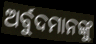
ଅର୍ବୁଦମାନଙ୍କୁ